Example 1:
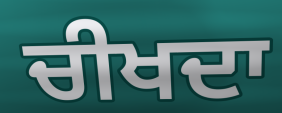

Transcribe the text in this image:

ਚੀਖਦਾ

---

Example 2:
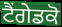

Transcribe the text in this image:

ਟੈਂਗੇਡਕੋ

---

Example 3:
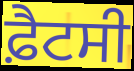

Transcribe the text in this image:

ਫ਼ੈਟਸੀ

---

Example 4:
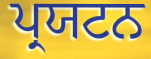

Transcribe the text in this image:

ਪ੍ਰਯਟਨ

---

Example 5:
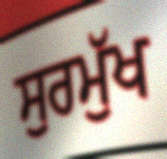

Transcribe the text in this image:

ਸੁਰਮੁੱਖ